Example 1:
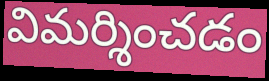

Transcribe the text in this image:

విమర్శించడం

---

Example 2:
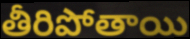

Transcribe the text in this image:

తీరిపోతాయి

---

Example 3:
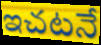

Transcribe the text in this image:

ఇచటనే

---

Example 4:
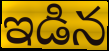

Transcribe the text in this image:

ఇడిన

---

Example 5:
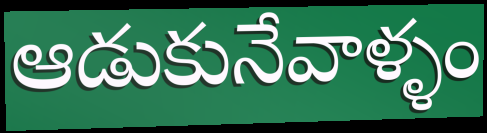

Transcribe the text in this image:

ఆడుకునేవాళ్ళం